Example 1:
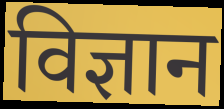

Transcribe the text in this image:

विज्ञान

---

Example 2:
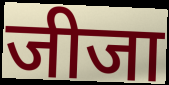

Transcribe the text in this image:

जीजा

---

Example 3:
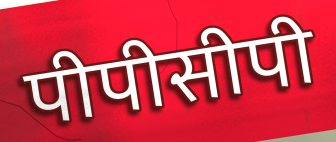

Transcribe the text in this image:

पीपीसीपी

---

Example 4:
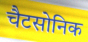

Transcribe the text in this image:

चैटसोनिक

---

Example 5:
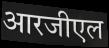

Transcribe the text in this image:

आरजीएल